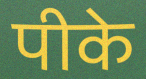
पीके